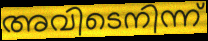
അവിടെനിന്ന്